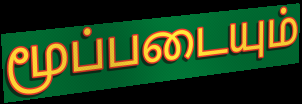
மூப்படையும்